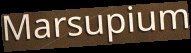
Marsupium